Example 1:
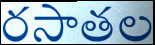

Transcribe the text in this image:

రసాతల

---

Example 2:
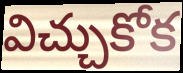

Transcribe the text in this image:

విచ్చుకోక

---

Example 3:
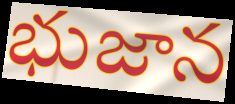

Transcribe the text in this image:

భుజాన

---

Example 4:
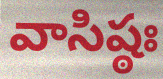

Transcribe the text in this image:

వాసిష్ఠః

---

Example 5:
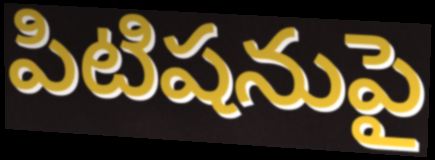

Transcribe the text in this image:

పిటిషనుపై